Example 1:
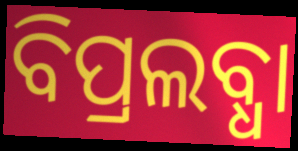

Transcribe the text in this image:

ବିପ୍ରଲବ୍ଧା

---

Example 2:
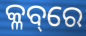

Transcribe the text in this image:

କ୍ଳବ୍‌ରେ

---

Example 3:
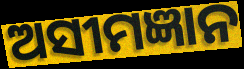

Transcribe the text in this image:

ଅସୀମଜ୍ଞାନ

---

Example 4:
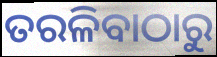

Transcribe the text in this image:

ତରଳିବାଠାରୁ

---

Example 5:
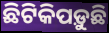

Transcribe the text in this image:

ଛିଟିକିପଡ଼ୁଛି